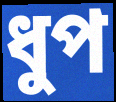
ধুপ